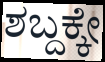
ಶಬ್ದಕ್ಕೇ